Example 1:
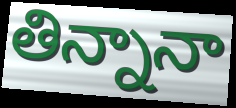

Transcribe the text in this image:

తిన్నానా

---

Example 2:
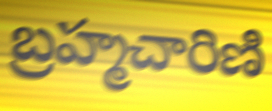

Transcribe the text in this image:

బ్రహ్మచారిణి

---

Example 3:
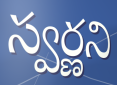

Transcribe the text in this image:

స్వర్ణని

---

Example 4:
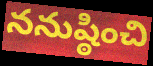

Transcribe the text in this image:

ననుష్ఠించి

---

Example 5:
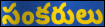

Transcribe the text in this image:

సంకరులు